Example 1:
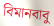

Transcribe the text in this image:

বিমানবাবু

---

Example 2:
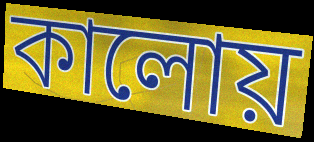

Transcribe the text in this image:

কালোয়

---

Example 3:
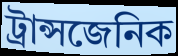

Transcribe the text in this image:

ট্রান্সজেনিক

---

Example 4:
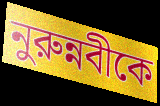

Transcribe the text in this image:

নুরুন্নবীকে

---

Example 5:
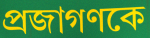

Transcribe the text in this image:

প্রজাগণকে